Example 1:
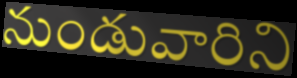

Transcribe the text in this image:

నుండువారిని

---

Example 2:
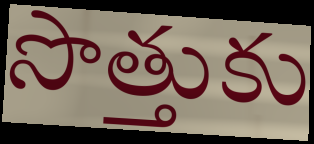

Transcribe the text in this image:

సొత్తుకు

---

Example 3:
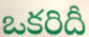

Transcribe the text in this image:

ఒకరిదీ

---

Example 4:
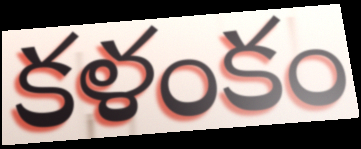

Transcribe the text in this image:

కళంకం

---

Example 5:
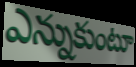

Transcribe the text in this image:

ఎన్నుకుంటూ